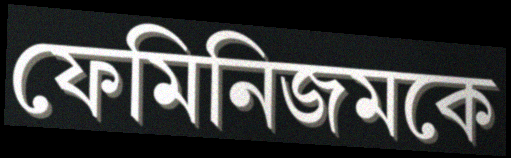
ফেমিনিজমকে